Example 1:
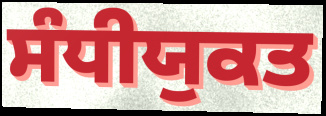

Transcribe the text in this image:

ਸੰਧੀਯੁਕਤ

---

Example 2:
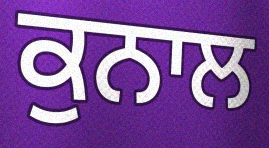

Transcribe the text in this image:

ਕੁਨਾਲ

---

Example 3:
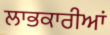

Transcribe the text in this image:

ਲਾਭਕਾਰੀਆਂ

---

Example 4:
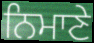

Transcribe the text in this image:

ਨਿਮਾਣੇ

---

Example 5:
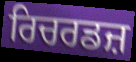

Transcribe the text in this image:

ਰਿਚਰਡਜ਼